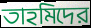
তাহমিদের